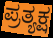
ಪ್ರತ್ಯಕ್ಷ